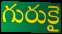
గురుకై